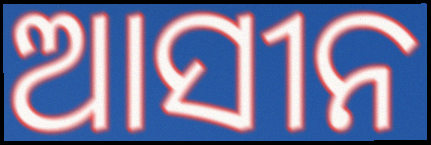
ଆସୀନ